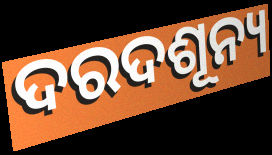
ଦରଦଶୂନ୍ୟ